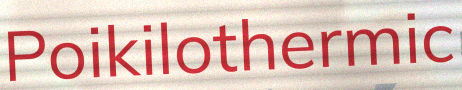
Poikilothermic